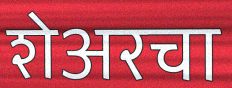
शेअरचा